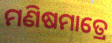
ମଣିଷମାତ୍ରେ